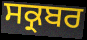
ਸਕ੍ਰਬਰ